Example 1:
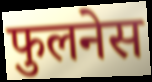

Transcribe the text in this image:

फुलनेस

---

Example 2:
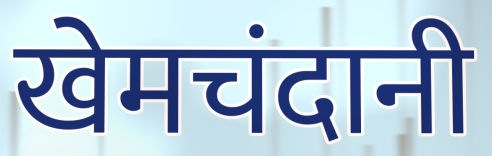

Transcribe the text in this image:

खेमचंदानी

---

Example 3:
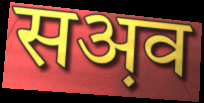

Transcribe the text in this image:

सअ़व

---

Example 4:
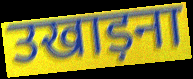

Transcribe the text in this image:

उखाड़ना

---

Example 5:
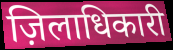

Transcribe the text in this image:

ज़िलाधिकारी